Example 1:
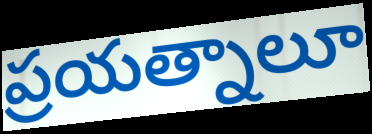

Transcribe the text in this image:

ప్రయత్నాలూ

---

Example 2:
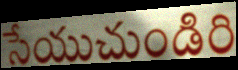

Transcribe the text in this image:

సేయుచుండిరి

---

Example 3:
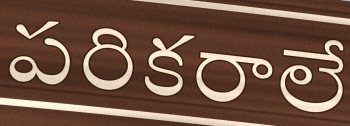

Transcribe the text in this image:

పరికరాలే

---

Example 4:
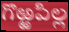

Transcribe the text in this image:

గొఱ్ఱపిల్ల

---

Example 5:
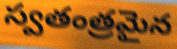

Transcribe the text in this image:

స్వతంత్రమైన